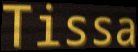
Tissa